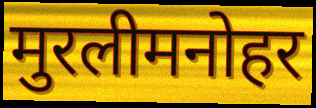
मुरलीमनोहर